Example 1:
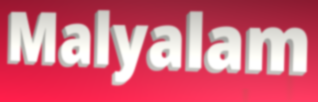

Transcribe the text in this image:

Malyalam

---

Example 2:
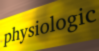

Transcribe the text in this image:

physiologic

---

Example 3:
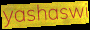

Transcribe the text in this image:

yashaswi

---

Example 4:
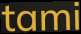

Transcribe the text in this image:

tami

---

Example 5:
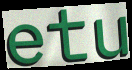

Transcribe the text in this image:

etu